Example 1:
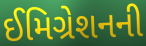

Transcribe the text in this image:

ઈમિગ્રેશનની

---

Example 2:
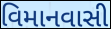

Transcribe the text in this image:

વિમાનવાસી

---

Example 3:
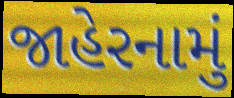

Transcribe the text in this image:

જાહેરનામું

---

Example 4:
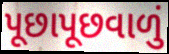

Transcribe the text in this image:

પૂછાપૂછવાળું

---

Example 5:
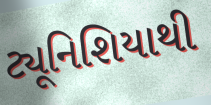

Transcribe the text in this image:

ટ્યૂનિશિયાથી